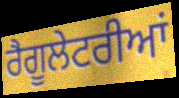
ਰੈਗੂਲੇਟਰੀਆਂ